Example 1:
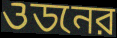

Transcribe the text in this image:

ওডনের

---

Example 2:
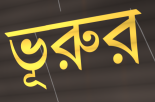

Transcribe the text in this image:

ভূরুর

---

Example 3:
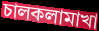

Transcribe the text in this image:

চালকলামাখা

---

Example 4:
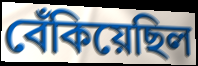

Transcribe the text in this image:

বেঁকিয়েছিল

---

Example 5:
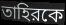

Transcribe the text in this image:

তাহিরকে